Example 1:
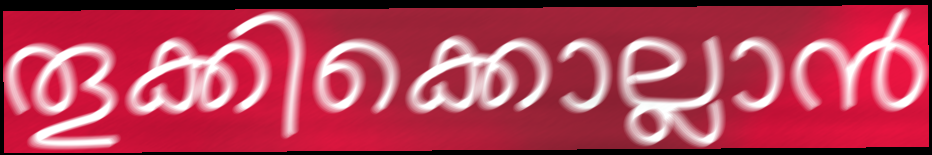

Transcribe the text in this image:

തൂക്കിക്കൊല്ലാൻ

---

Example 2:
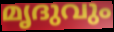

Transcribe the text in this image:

മൃദുവും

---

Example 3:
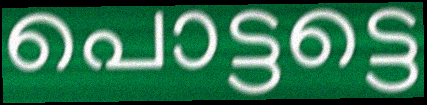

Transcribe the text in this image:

പൊട്ടട്ടെ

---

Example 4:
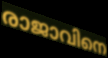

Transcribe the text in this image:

രാജാവിനെ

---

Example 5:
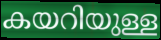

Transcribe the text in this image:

കയറിയുള്ള